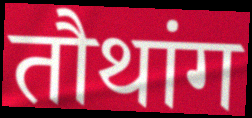
तौथांग